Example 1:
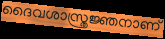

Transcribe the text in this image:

ദൈവശാസ്ത്രജ്ഞനാണ്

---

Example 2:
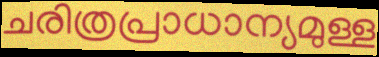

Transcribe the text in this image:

ചരിത്രപ്രാധാന്യമുള്ള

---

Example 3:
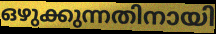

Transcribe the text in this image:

ഒഴുക്കുന്നതിനായി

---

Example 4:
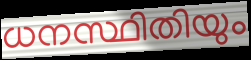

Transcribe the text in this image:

ധനസ്ഥിതിയും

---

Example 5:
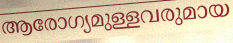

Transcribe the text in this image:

ആരോഗ്യമുള്ളവരുമായ